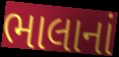
ભાલાનાં